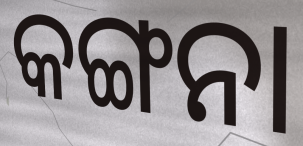
କଙ୍ଗନା